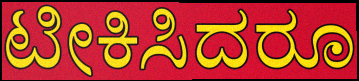
ಟೀಕಿಸಿದರೂ